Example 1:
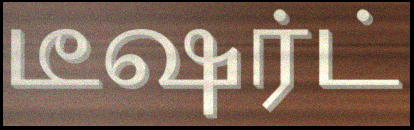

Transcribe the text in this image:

டீஷர்ட்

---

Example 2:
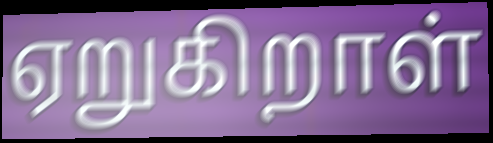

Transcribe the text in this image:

ஏறுகிறாள்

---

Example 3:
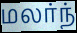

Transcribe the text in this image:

மலர்ந்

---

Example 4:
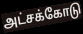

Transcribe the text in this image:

அட்சக்கோடு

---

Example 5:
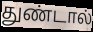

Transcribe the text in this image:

துண்டால்